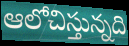
ఆలోచిస్తున్నది